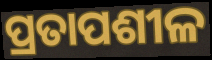
ପ୍ରତାପଶୀଳ